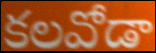
కలవోడా